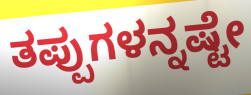
ತಪ್ಪುಗಳನ್ನಷ್ಟೇ